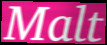
Malt